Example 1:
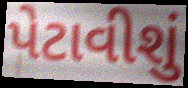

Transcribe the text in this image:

પેટાવીશું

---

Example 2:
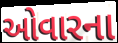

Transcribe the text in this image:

ઓવારના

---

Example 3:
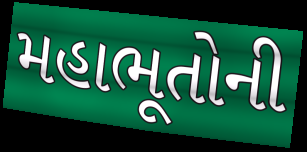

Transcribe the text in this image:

મહાભૂતોની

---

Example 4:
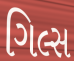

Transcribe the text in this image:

ગિલ્સ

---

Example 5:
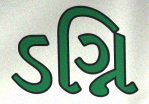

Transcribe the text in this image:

ઽગ્નિ